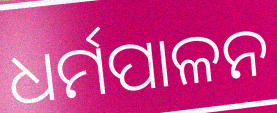
ଧର୍ମପାଳନ